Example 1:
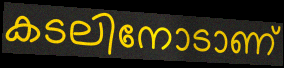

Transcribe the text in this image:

കടലിനോടാണ്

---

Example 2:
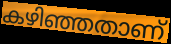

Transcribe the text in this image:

കഴിഞ്ഞതാണ്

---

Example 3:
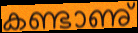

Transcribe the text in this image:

കണ്ടാണു്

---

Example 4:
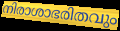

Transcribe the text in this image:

നിരാശാഭരിതവും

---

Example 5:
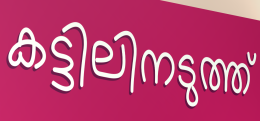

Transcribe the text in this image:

കട്ടിലിനടുത്ത്